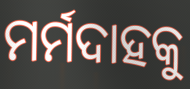
ମର୍ମଦାହକୁ